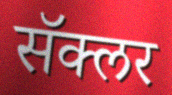
सॅक्लर